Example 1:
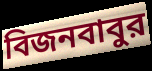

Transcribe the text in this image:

বিজনবাবুর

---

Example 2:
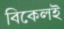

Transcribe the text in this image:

বিকেলই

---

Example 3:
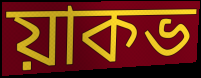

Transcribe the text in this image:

য়াকভ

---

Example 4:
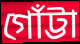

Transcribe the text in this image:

গোঁট্টা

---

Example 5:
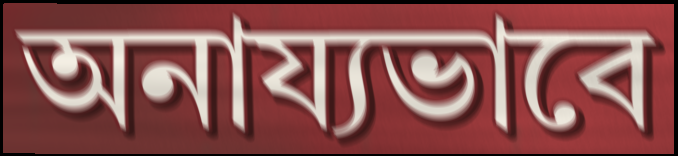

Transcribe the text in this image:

অনায্যভাবে